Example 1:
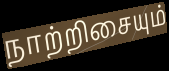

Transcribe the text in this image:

நாற்றிசையும்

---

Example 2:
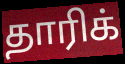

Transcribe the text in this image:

தாரிக்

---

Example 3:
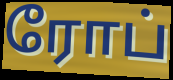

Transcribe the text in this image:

ரோப்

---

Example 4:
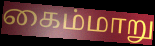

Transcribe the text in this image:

கைம்மாறு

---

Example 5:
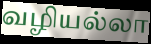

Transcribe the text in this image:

வழியல்லா